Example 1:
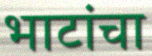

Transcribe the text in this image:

भाटांचा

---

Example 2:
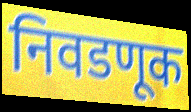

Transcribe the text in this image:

निवडणूक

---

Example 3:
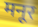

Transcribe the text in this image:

मनूर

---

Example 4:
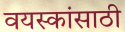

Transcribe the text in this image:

वयस्कांसाठी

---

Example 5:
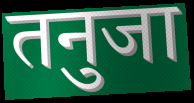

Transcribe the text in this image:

तनुजा